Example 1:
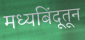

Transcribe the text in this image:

मध्यबिंदूतून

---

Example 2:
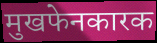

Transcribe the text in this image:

मुखफेनकारक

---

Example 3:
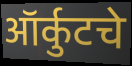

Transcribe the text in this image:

ऑर्कुटचे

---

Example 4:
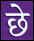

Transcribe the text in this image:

छे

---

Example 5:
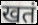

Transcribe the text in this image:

खतं